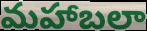
మహాబలా